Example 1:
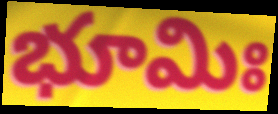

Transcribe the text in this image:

భూమిః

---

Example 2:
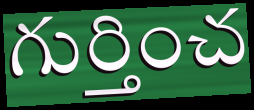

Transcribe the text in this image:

గుర్తించ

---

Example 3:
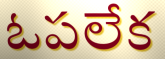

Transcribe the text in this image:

ఓపలేక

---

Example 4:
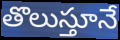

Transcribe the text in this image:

తొలుస్తూనే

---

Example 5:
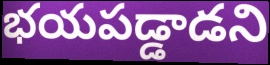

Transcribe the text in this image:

భయపడ్డాడని